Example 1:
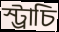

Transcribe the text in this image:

স্ট্রাচি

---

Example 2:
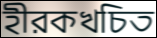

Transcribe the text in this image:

হীরকখচিত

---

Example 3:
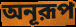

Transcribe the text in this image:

অনূরূপ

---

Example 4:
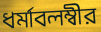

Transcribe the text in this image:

ধর্মাবলম্বীর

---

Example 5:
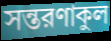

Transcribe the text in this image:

সন্তরণাকুল